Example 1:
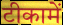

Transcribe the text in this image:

टीकामें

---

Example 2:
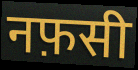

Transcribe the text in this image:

नफ़सी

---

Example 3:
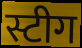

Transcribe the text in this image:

स्टीग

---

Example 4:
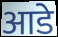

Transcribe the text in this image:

आडे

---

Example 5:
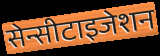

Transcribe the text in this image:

सेन्सीटाइजेशन